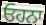
ਓਹਨਾ